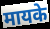
मायके